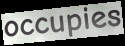
occupies